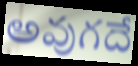
అవుగదే